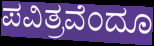
ಪವಿತ್ರವೆಂದೂ